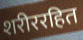
शरीररहित